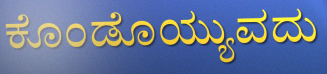
ಕೊಂಡೊಯ್ಯುವದು